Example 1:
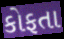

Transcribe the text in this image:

કોફતા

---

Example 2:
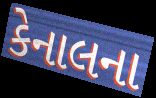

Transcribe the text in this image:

કેનાલના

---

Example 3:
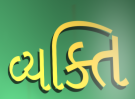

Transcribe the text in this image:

વ્યક્તિ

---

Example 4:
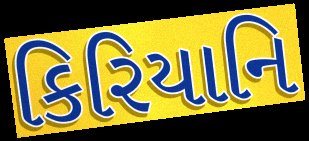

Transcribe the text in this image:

કિરિયાનિ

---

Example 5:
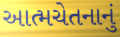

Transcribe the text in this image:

આત્મચેતનાનું